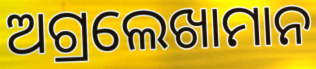
ଅଗ୍ରଲେଖାମାନ